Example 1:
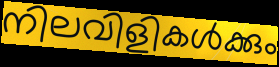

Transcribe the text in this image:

നിലവിളികൾക്കും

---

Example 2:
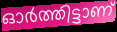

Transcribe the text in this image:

ഓർത്തിട്ടാണ്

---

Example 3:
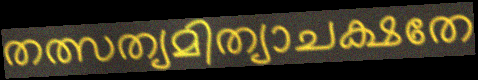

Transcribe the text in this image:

തത്സത്യമിത്യാചക്ഷതേ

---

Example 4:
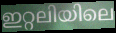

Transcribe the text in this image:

ഇറ്റലിയിലെ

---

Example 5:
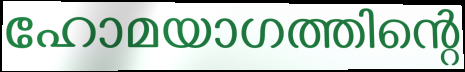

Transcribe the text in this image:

ഹോമയാഗത്തിന്റെ